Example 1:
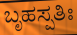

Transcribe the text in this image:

ಬೃಹಸ್ಪತಿಃ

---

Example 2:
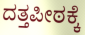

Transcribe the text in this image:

ದತ್ತಪೀಠಕ್ಕೆ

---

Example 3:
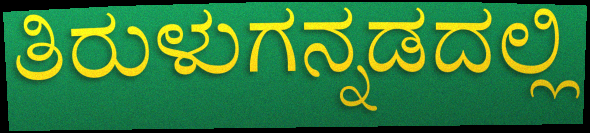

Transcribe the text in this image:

ತಿರುಳುಗನ್ನಡದಲ್ಲಿ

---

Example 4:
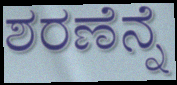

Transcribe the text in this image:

ಶರಣೆನ್ನೆ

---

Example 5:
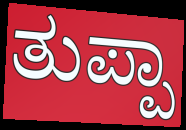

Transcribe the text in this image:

ತುಪ್ಪಾ